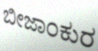
ಬೀಜಾಂಕುರ